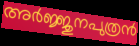
അർജ്ജുനപുത്രൻ